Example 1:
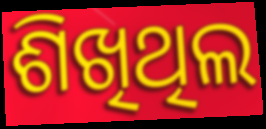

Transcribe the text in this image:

ଶିଖିଥିଲ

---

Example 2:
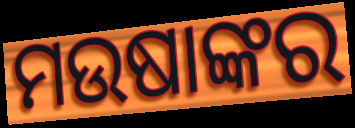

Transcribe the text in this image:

ମଉଷାଙ୍କର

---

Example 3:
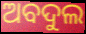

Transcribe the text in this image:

ଅବଦୁଲ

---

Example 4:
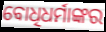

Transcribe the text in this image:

ବୋଧିଧର୍ମାଙ୍କର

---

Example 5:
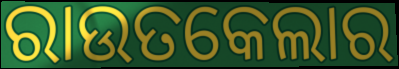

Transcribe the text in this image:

ରାଉତକେଲାର